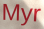
Myr